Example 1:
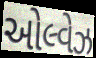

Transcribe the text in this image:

ઓલ્વેઝ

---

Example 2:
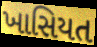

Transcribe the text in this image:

ખાસિયત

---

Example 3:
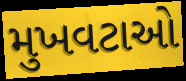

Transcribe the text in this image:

મુખવટાઓ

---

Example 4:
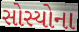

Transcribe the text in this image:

સોસ્યોના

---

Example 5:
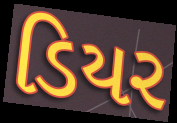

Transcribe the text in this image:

ડિયર